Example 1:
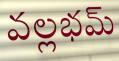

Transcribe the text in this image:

వల్లభమ్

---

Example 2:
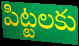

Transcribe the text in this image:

పిట్టలకు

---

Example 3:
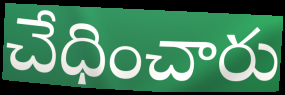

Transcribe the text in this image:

చేధించారు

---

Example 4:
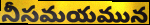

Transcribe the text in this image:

నీసమయమున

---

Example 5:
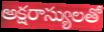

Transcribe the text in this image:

అక్షరాస్యులతో